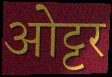
ओट्टर